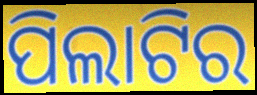
ପିଲାଟିର